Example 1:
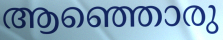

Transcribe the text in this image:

ആഞ്ഞൊരു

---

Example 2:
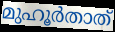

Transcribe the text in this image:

മുഹൂർതാത്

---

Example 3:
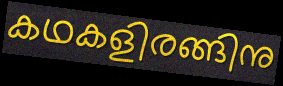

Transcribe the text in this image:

കഥകളിരങ്ങിനു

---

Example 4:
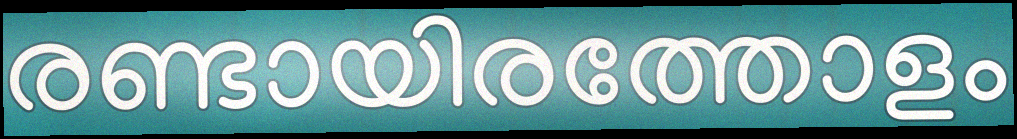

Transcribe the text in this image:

രണ്ടായിരത്തോളം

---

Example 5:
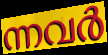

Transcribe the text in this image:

ന്നവർ